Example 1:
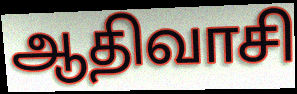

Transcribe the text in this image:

ஆதிவாசி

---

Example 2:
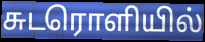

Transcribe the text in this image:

சுடரொளியில்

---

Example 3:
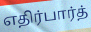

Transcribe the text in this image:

எதிர்பார்த்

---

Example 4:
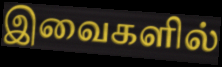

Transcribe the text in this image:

இவைகளில்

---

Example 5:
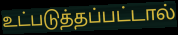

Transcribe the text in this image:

உட்படுத்தப்பட்டால்